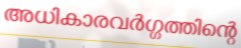
അധികാരവർഗ്ഗത്തിന്റെ